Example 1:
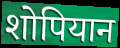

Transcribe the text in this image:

शोपियान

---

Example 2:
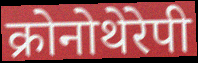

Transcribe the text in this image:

क्रोनोथेरेपी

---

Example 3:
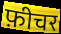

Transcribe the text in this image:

फ़ीचर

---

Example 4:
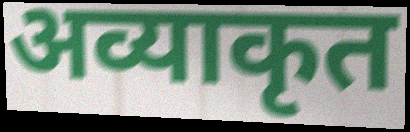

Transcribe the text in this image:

अव्याकृत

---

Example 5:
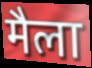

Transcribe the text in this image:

मैला